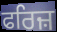
ਫਰਿਜ਼